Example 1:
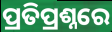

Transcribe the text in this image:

ପ୍ରତିପ୍ରଶ୍ନରେ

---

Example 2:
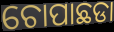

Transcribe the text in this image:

ଚୋପାଛଡା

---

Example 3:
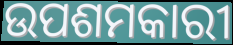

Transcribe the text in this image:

ଉପଶମକାରୀ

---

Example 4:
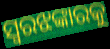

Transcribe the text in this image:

ସ୍ୱରଝଙ୍କାରକୁ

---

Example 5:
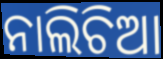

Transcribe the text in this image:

ନାଲିଚିଆ